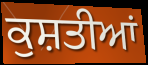
ਕੁਸ਼ਤੀਆਂ